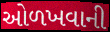
ઓળખવાની